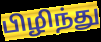
பிழிந்து